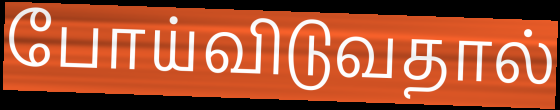
போய்விடுவதால்